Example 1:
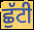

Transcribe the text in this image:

ਛੁੱਟੀ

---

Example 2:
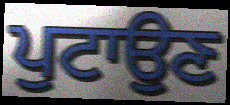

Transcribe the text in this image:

ਪੁਟਾਉਣ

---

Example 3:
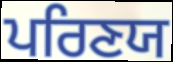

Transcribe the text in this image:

ਪਰਿਣਯ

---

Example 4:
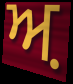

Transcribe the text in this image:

ਅ਼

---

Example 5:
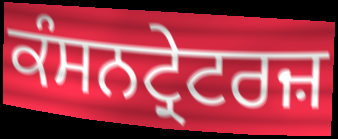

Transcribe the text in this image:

ਕੰਸਨਟ੍ਰੇਟਰਜ਼